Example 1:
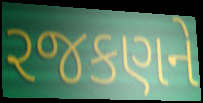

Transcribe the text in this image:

રજકણને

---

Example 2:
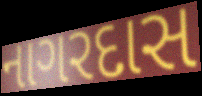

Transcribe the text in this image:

નાગરદાસ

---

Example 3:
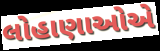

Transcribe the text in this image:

લોહાણાઓએ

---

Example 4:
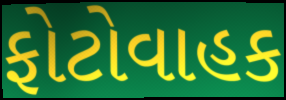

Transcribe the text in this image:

ફોટોવાહક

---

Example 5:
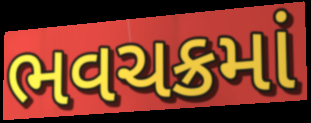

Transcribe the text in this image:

ભવચક્રમાં